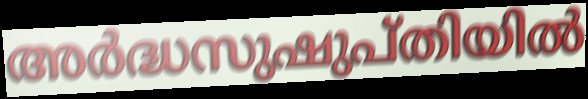
അർദ്ധസുഷുപ്തിയിൽ